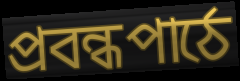
প্রবন্ধপাঠে